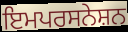
ਇਮਪਰਸਨੇਸ਼ਨ